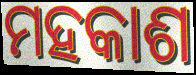
ମହକାଶ